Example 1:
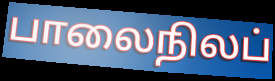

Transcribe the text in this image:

பாலைநிலப்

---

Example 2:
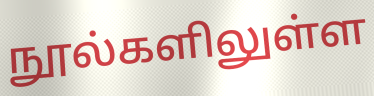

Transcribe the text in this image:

நூல்களிலுள்ள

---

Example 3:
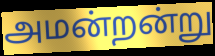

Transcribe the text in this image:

அமன்றன்று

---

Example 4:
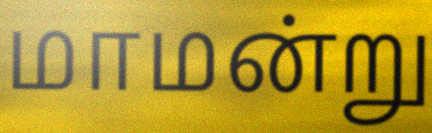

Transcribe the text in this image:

மாமன்று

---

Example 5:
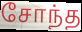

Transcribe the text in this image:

சோந்த